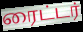
ரைட்டர்